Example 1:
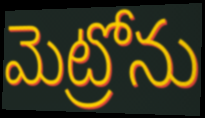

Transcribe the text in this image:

మెట్రోను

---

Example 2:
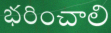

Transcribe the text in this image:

భరించాలి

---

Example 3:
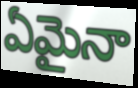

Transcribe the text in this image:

ఏమైనా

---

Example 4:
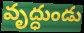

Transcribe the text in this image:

వృద్ధుండు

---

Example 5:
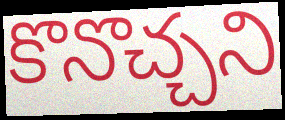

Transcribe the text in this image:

కొనొచ్చని